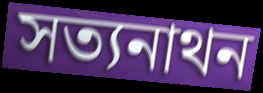
সত্যনাথন